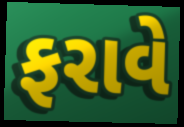
ફરાવે